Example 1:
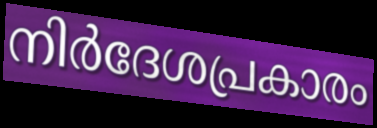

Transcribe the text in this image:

നിർദേശപ്രകാരം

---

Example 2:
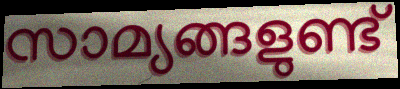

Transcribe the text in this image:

സാമ്യങ്ങളുണ്ട്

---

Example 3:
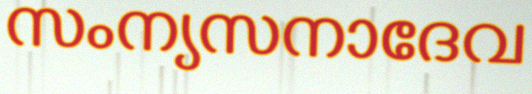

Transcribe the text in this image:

സംന്യസനാദേവ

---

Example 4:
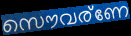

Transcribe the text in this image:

സൌവര്ണേ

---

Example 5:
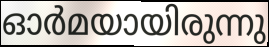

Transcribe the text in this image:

ഓർമയായിരുന്നു